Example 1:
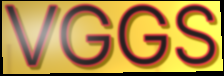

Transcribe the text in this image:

VGGS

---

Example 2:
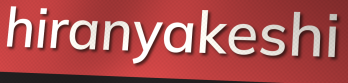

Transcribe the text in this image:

hiranyakeshi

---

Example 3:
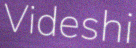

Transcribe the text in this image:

Videshi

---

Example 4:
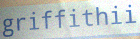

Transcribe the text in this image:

griffithii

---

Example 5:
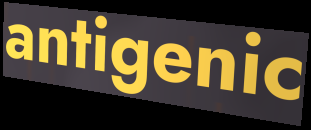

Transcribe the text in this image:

antigenic